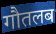
गौतलब